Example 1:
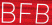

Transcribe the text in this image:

BFB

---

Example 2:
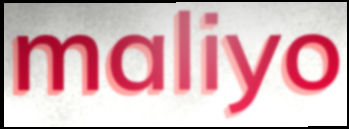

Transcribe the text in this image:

maliyo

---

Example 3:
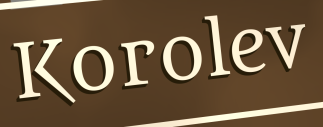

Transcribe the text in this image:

Korolev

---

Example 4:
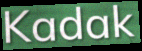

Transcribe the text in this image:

Kadak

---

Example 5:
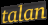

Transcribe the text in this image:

talan